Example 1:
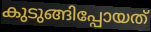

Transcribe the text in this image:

കുടുങ്ങിപ്പോയത്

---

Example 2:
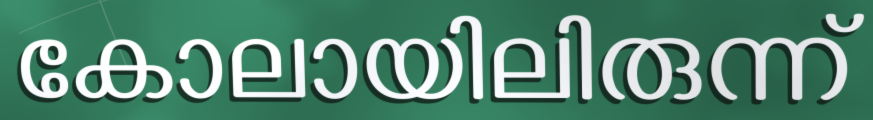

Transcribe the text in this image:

കോലായിലിരുന്ന്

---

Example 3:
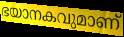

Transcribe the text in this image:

ഭയാനകവുമാണ്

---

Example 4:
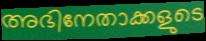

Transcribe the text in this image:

അഭിനേതാക്കളുടെ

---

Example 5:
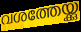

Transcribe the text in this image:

വശത്തേയ്ക്കു